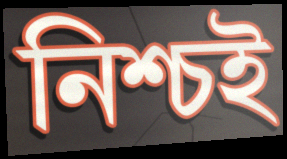
নিশ্চই